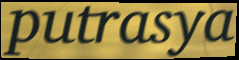
putrasya